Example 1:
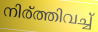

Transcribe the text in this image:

നിര്ത്തിവച്ച്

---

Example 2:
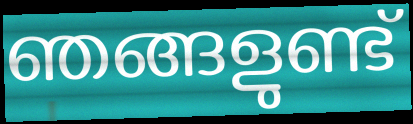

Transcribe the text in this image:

ഞങ്ങളുണ്ട്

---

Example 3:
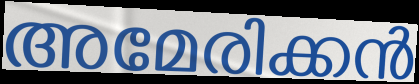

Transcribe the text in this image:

അമേരിക്കൻ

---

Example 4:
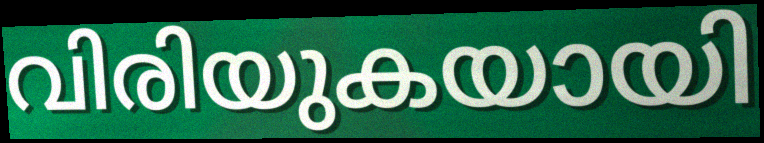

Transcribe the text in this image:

വിരിയുകയായി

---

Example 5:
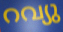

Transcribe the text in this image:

റവ്യു